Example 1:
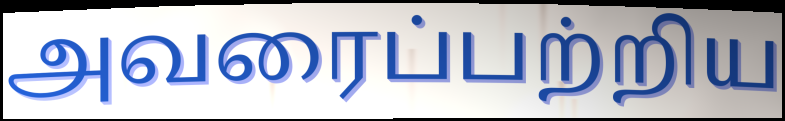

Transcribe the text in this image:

அவரைப்பற்றிய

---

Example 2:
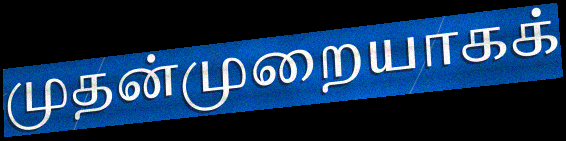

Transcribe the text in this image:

முதன்முறையாகக்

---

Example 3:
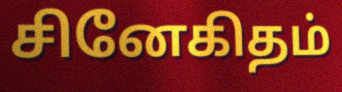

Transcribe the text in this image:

சினேகிதம்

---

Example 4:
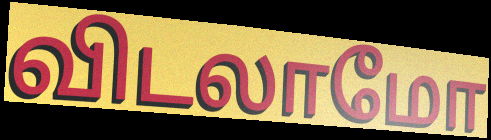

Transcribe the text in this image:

விடலாமோ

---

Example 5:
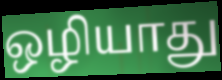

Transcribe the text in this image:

ஒழியாது